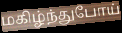
மகிழ்ந்துபோய்